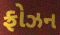
ફ્રોઝન